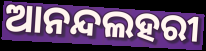
ଆନନ୍ଦଲହରୀ